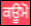
ਕਊਮੋ